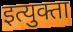
इत्युक्ता